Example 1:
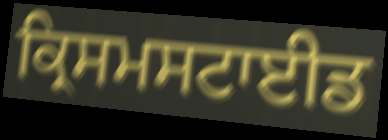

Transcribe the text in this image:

ਕ੍ਰਿਸਮਸਟਾਈਡ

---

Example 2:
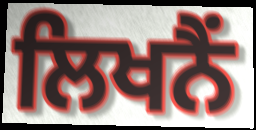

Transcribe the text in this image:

ਲਿਖਨੈਂ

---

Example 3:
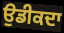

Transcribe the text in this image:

ਉਡੀਕਦਾ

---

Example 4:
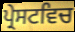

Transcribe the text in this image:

ਪ੍ਰੇਸਟਵਿਚ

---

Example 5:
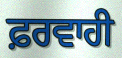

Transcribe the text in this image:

ਫ਼ਰਵਾਹੀ